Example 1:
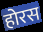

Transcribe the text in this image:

होरस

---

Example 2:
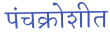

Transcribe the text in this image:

पंचक्रोशीत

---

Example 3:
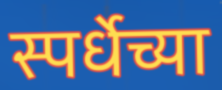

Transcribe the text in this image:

स्पर्धेच्या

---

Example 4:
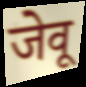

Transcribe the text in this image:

जेवू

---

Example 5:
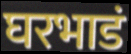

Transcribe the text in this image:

घरभाडं